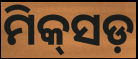
ମିକ୍‌ସଡ଼